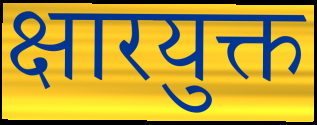
क्षारयुक्त